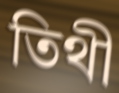
তিথী